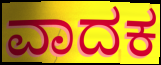
ವಾದಕ